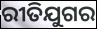
ରୀତିଯୁଗର